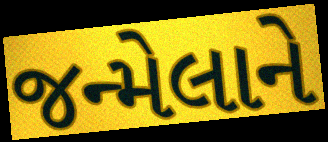
જન્મેલાને